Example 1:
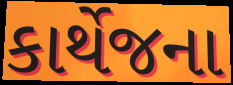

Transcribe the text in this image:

કાર્થેજના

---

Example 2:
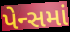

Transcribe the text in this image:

પેન્સમાં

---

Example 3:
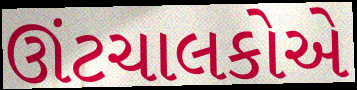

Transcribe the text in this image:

ઊંટચાલકોએ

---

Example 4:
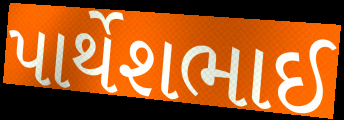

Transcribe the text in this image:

પાર્થેશભાઈ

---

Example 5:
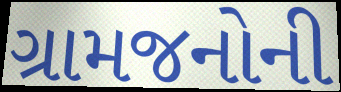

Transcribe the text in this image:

ગ્રામજનોની